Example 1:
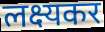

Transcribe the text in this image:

लक्ष्यकर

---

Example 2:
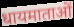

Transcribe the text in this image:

धायमाताओं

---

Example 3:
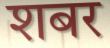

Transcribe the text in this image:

शबर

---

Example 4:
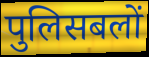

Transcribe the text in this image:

पुलिसबलों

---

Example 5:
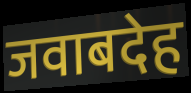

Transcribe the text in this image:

जवाबदेह